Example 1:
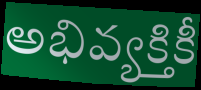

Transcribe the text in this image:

అభివ్యక్తికీ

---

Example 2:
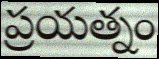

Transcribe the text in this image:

ప్రయత్నం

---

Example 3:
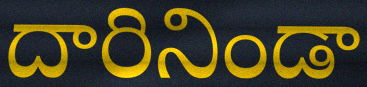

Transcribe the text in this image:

దారినిండా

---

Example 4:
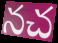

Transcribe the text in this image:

నచ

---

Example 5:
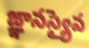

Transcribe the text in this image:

జ్ఞానస్యైవ